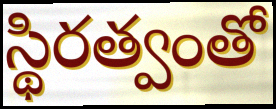
స్థిరత్వంతో